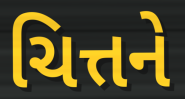
ચિત્તને